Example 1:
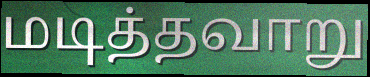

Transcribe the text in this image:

மடித்தவாறு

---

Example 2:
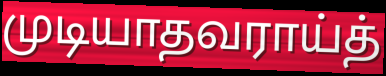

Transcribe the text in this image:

முடியாதவராய்த்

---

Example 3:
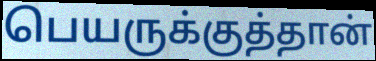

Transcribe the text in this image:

பெயருக்குத்தான்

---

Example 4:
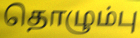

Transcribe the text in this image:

தொழும்பு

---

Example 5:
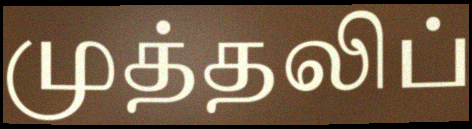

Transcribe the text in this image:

முத்தலிப்